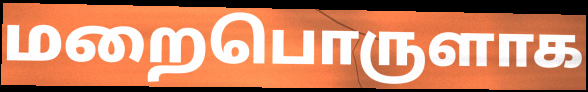
மறைபொருளாக